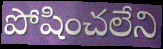
పోషించలేని